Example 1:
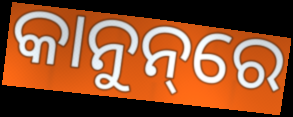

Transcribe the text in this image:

କାନୁନ୍‌ରେ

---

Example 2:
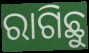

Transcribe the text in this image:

ରାଗିଛୁ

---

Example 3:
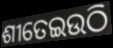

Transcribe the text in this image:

ଶୀତେଇଉଠି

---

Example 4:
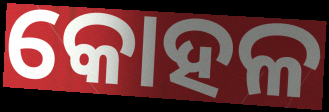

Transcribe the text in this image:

କୋହଳ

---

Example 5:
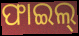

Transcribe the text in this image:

ଫାଇଲ୍